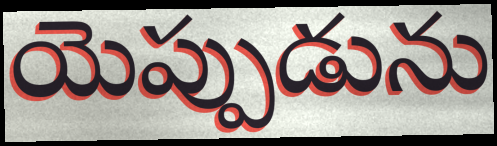
యెప్పుడును